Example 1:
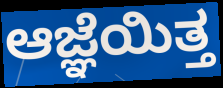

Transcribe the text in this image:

ಆಜ್ಞೆಯಿತ್ತ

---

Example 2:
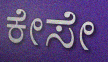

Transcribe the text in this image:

ಕೇಸೇ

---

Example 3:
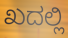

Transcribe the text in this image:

ಖದಲ್ಲಿ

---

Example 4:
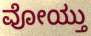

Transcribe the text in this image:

ವೋಯ್ತು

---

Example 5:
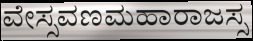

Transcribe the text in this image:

ವೇಸ್ಸವಣಮಹಾರಾಜಸ್ಸ